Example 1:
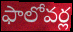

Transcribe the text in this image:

ఫాలోవర్ల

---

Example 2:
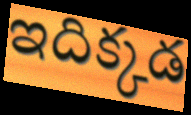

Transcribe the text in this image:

ఇదిక్కడ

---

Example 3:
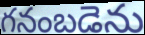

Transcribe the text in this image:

గనంబడెను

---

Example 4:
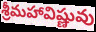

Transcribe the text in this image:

శ్రీమహావిష్ణువు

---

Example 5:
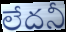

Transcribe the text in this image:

లేదనీ